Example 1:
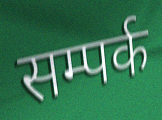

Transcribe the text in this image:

सम्पर्क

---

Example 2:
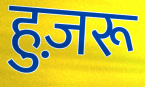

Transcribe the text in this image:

हुज़रू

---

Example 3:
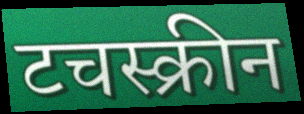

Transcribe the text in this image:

टचस्क्रीन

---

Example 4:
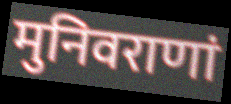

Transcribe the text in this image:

मुनिवराणां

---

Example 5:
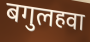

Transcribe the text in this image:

बगुलहवा